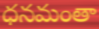
ధనమంతా